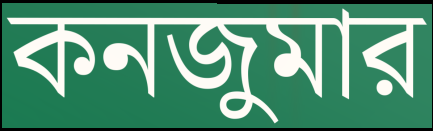
কনজুমার